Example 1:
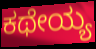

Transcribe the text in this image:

ಕಥೇಯ್ಯ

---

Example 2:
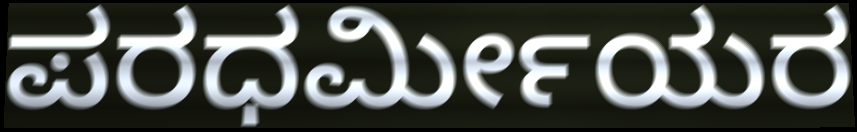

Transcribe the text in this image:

ಪರಧರ್ಮೀಯರ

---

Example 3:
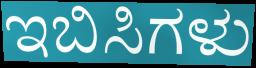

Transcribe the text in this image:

ಇಬಿಸಿಗಳು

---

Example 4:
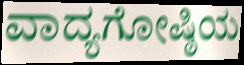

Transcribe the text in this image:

ವಾದ್ಯಗೋಷ್ಠಿಯ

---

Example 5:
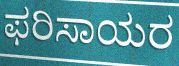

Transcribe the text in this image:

ಫರಿಸಾಯರ